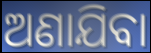
ଅଣାଯିବା